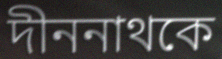
দীননাথকে